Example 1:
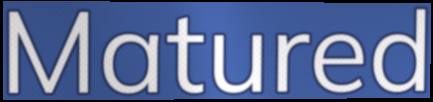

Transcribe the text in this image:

Matured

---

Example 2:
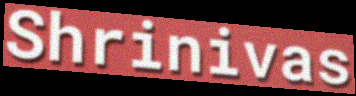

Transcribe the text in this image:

Shrinivas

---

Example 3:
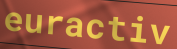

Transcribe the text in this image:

euractiv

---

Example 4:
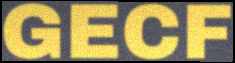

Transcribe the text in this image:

GECF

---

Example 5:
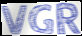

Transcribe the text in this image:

VGR